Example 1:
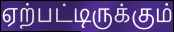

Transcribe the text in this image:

ஏற்பட்டிருக்கும்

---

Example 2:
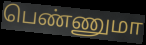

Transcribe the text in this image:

பெண்ணுமா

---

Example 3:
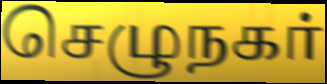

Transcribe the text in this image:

செழுநகர்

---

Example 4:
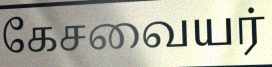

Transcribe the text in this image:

கேசவையர்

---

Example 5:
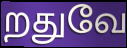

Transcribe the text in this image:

றதுவே